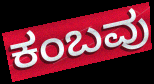
ಕಂಬವು